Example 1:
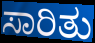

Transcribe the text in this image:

ಸಾರಿತು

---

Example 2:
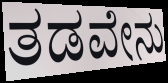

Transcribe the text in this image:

ತಡವೇನು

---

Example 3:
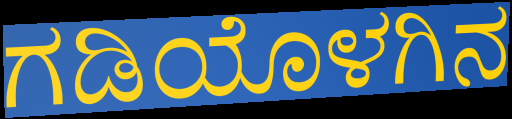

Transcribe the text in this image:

ಗಡಿಯೊಳಗಿನ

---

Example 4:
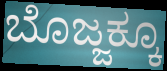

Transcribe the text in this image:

ಬೊಜ್ಜಕ್ಕೂ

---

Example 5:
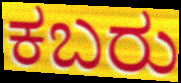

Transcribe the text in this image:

ಕಬರು